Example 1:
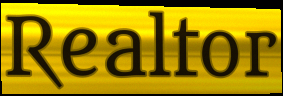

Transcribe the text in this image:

Realtor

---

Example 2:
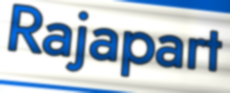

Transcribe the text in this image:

Rajapart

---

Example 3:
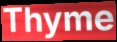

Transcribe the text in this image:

Thyme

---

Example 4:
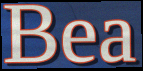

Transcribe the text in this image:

Bea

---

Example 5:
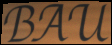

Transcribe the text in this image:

BAU